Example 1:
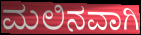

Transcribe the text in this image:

ಮಲಿನವಾಗಿ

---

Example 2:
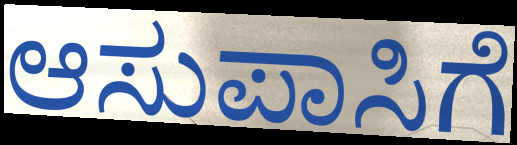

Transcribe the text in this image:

ಆಸುಪಾಸಿಗೆ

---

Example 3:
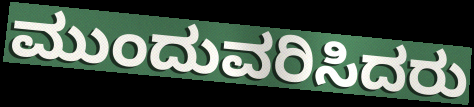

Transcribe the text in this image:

ಮುಂದುವರಿಸಿದರು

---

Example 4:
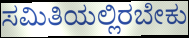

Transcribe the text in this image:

ಸಮಿತಿಯಲ್ಲಿರಬೇಕು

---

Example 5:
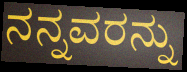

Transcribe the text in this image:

ನನ್ನವರನ್ನು